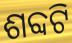
ଶବ୍ଦଟି